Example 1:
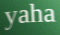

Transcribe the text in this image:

yaha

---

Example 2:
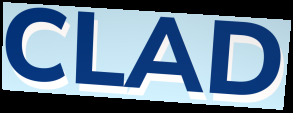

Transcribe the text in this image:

CLAD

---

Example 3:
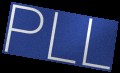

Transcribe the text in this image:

PLL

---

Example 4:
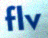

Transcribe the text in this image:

flv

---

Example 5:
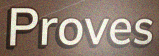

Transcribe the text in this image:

Proves